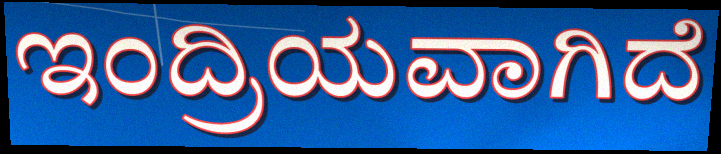
ಇಂದ್ರಿಯವಾಗಿದೆ